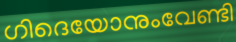
ഗിദെയോനുംവേണ്ടി